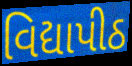
વિદ્યાપીઠ